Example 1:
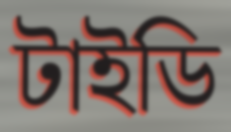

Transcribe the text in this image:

টাইডি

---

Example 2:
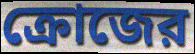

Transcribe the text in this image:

ক্রোজের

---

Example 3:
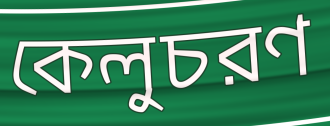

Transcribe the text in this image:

কেলুচরণ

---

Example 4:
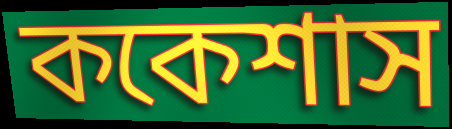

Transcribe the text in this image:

ককেশাস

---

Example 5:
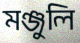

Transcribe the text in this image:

মঞ্জুলি